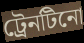
ট্রেনটিনো